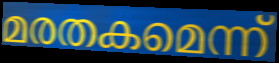
മരതകമെന്ന്